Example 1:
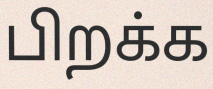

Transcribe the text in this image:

பிறக்க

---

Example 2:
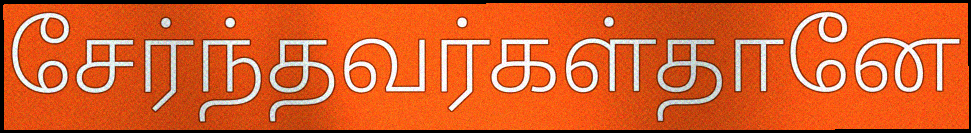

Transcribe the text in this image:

சேர்ந்தவர்கள்தானே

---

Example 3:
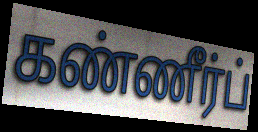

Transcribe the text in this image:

கண்ணீர்ப்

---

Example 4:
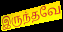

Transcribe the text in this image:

இருந்தவே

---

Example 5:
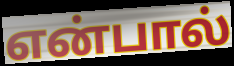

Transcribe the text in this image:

என்பால்